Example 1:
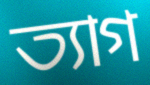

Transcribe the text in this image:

ত্যাগ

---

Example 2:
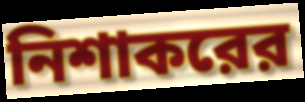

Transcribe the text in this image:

নিশাকরের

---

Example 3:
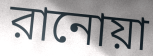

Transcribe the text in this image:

রানোয়া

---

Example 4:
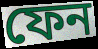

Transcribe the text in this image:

ফেন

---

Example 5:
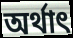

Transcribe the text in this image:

অর্থাৎ